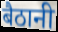
बैठानी